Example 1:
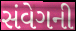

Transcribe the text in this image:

સંવેગની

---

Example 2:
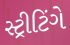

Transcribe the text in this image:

સ્ટ્રીટિંગે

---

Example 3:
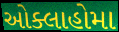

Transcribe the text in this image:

ઓક્લાહોમા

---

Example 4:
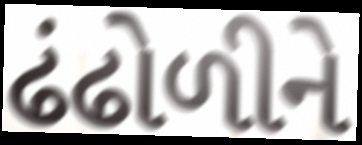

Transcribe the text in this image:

ઢંઢોળીને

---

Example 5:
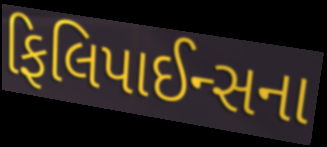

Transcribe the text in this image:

ફિલિપાઈન્સના